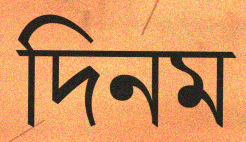
দিনম